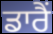
ਡਾਰੈਂ